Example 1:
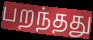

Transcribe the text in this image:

பறந்தது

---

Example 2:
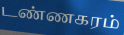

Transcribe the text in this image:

டண்ணகரம்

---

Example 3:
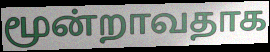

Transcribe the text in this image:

மூன்றாவதாக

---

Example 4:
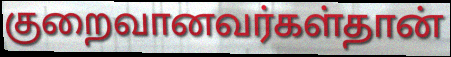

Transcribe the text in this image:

குறைவானவர்கள்தான்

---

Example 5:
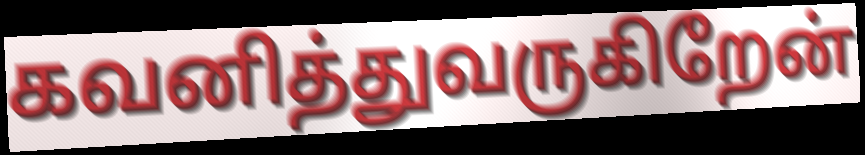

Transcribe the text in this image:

கவனித்துவருகிறேன்